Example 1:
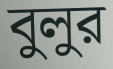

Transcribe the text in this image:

বুলুর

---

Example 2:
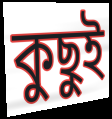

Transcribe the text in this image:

কুছুই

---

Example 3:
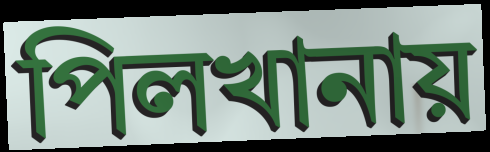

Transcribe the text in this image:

পিলখানায়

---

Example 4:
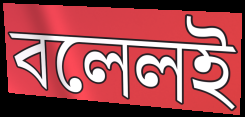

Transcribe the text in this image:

বলেলই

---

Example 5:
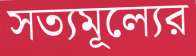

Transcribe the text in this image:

সত্যমূল্যের